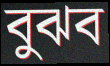
বুঝব